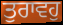
ਤੁਰਾਵਹੁ